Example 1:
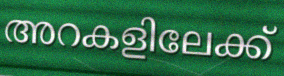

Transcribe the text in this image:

അറകളിലേക്ക്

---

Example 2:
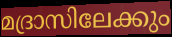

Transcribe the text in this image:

മദ്രാസിലേക്കും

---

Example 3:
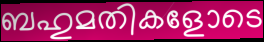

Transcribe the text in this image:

ബഹുമതികളോടെ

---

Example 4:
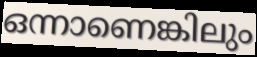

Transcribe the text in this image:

ഒന്നാണെങ്കിലും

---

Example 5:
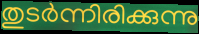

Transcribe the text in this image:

തുടർന്നിരിക്കുന്നു